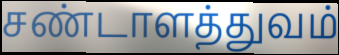
சண்டாளத்துவம்